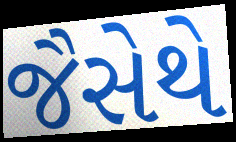
જૈસેથે